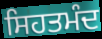
ਸਿਹਤਮੰਦ